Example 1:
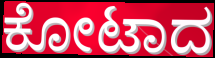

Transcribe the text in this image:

ಕೋಟಾದ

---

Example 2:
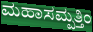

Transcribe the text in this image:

ಮಹಾಸಮ್ಪತ್ತಿಂ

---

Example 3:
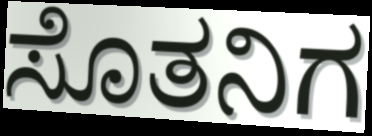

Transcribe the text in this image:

ಸೊತನಿಗ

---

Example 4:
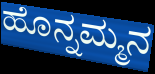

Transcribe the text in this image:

ಹೊನ್ನಮ್ಮನ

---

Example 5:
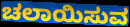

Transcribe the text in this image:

ಚಲಾಯಿಸುವ